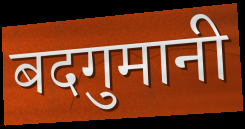
बदगुमानी